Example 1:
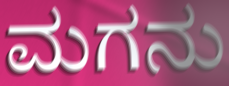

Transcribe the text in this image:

ಮಗನು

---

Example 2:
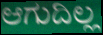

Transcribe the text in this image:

ಆಗುದಿಲ್ಲ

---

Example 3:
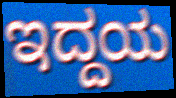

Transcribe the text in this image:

ಇದ್ದಯ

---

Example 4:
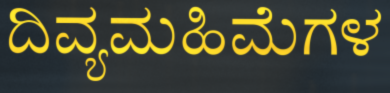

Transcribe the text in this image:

ದಿವ್ಯಮಹಿಮೆಗಳ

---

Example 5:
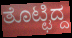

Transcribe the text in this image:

ತೊಟ್ಟಿದ್ದ